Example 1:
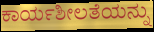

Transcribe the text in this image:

ಕಾರ್ಯಶೀಲತೆಯನ್ನು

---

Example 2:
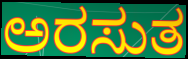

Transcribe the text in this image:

ಅರಸುತ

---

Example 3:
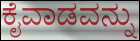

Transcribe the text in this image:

ಕೈವಾಡವನ್ನು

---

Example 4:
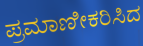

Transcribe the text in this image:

ಪ್ರಮಾಣೀಕರಿಸಿದ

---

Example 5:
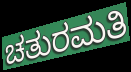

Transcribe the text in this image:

ಚತುರಮತಿ